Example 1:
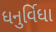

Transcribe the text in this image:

ધનુર્વિધા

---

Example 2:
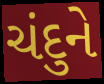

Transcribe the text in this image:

ચંદુને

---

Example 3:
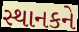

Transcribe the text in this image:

સ્થાનકને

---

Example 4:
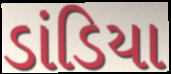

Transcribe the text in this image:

ડાંડિયા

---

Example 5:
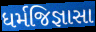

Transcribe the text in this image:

ધર્મજિજ્ઞાસા